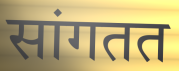
सांगतत